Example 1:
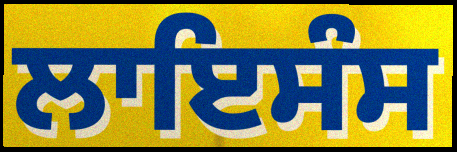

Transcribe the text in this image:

ਲਾਇਸੰਸ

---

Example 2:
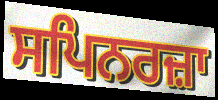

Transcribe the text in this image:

ਸਪਿਨਰਜ਼ਾ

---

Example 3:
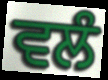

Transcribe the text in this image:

ਵਲੰ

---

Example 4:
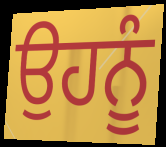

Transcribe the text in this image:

ਉਹਨੂੰ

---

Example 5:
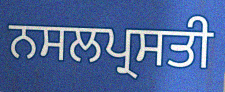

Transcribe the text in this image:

ਨਸਲਪ੍ਰਸਤੀ